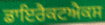
ਡਾਇਰੈਕਟਐਕਸ